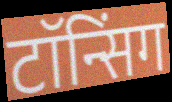
टॉन्सिंग